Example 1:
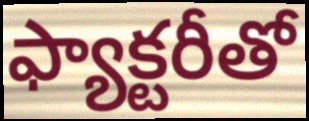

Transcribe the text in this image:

ఫ్యాక్టరీతో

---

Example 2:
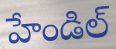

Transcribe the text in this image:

హేండిల్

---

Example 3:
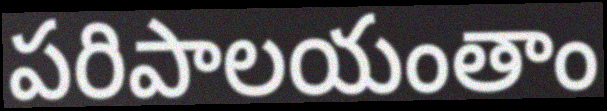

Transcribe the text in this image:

పరిపాలయంతాం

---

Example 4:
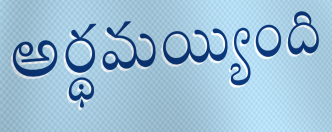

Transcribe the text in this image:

అర్థమయ్యింది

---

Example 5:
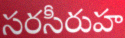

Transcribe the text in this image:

సరసీరుహ